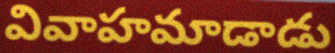
వివాహమాడాడు